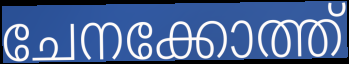
ചേനക്കോത്ത്